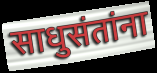
साधुसंतांना